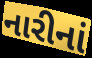
નારીનાં